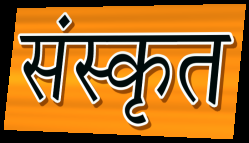
संस्कृत